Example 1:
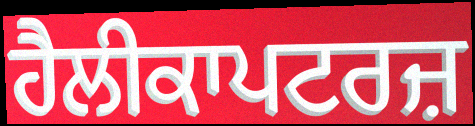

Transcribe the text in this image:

ਹੈਲੀਕਾਪਟਰਜ਼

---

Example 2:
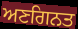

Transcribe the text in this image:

ਅਣਗਿਨਤ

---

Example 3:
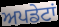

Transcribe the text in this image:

ਅਪਡੇਟਾਂ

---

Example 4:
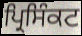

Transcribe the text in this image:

ਪ੍ਰਿਸਿੰਕਟ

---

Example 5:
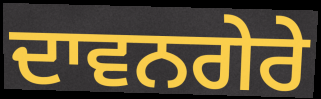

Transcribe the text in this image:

ਦਾਵਨਗੇਰੇ